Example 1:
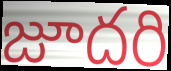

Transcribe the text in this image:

జూదరి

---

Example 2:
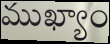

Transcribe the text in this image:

ముఖ్యాం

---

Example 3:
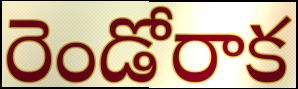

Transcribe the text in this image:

రెండోరాక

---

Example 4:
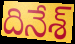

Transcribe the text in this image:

దినేశ్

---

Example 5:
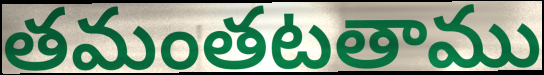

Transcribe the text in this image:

తమంతటతాము